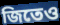
জিতেও